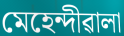
মেহেন্দীৱালা